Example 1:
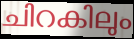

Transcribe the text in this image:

ചിറകിലും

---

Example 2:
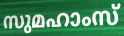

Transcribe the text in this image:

സുമഹാംസ്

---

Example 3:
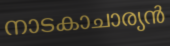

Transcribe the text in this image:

നാടകാചാര്യൻ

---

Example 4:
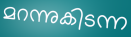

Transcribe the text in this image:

മറന്നുകിടന്ന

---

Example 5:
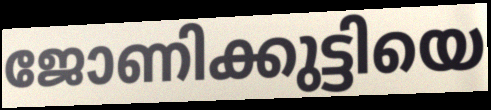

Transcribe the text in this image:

ജോണിക്കുട്ടിയെ